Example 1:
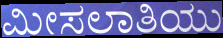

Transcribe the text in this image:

ಮೀಸಲಾತಿಯು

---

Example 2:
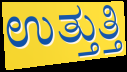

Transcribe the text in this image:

ಉತ್ತುತ್ತಿ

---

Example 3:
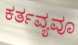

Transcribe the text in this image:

ಕರ್ತವ್ಯವೂ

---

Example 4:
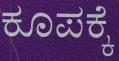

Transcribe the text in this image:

ಕೂಪಕ್ಕೆ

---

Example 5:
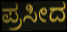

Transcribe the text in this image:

ಪ್ರಸೀದ